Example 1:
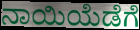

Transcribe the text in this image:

ನಾಯಿಯೆಡೆಗೆ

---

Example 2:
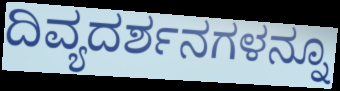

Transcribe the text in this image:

ದಿವ್ಯದರ್ಶನಗಳನ್ನೂ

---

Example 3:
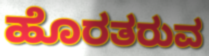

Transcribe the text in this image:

ಹೊರತರುವ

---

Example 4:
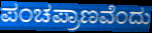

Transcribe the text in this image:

ಪಂಚಪ್ರಾಣವೆಂದು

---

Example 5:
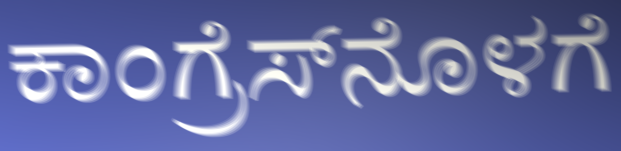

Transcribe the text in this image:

ಕಾಂಗ್ರೆಸ್‌ನೊಳಗೆ